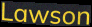
Lawson